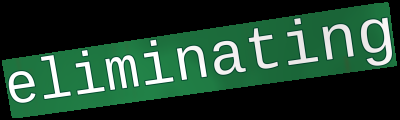
eliminating